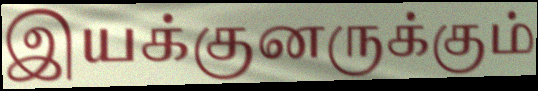
இயக்குனருக்கும்